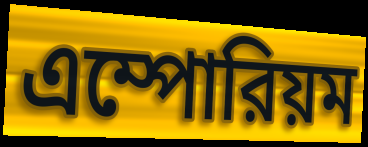
এম্পোরিয়ম